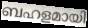
ബഹളമായി